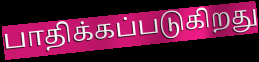
பாதிக்கப்படுகிறது